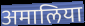
अमालिया